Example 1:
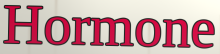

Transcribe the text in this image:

Hormone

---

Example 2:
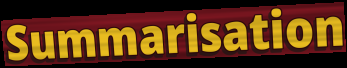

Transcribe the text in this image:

Summarisation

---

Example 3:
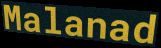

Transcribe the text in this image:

Malanad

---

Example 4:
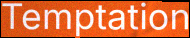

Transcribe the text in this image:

Temptation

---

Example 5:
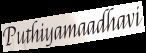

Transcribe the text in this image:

Puthiyamaadhavi